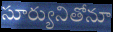
సూర్యునితోనూ